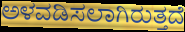
ಅಳವಡಿಸಲಾಗಿರುತ್ತದೆ